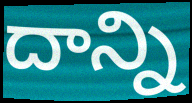
దాన్ని